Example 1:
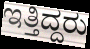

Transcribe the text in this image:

ಇತ್ತಿದ್ದರು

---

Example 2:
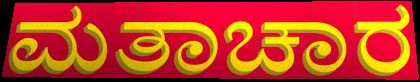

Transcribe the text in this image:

ಮತಾಚಾರ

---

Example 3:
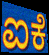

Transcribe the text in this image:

ಐಕೆ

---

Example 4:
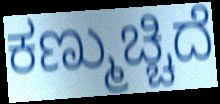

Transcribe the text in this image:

ಕಣ್ಮುಚ್ಚಿದೆ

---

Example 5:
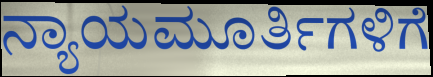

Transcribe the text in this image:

ನ್ಯಾಯಮೂರ್ತಿಗಳಿಗೆ